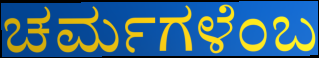
ಚರ್ಮಗಳೆಂಬ